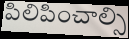
పిలిపించాల్సి